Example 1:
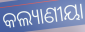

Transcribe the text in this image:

କଲ୍ୟାଣୀୟା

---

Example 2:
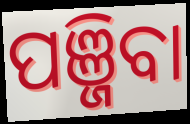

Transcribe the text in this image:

ପଞ୍ଜିବା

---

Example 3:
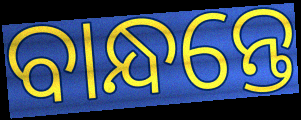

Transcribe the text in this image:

ବାନ୍ଧନ୍ତେ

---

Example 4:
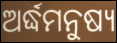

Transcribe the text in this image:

ଅର୍ଦ୍ଧମନୁଷ୍ୟ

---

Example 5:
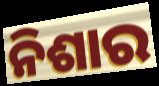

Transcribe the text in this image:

ନିଶାର